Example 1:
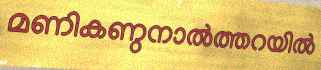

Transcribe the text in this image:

മണികണ്ഠനാൽത്തറയിൽ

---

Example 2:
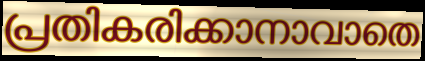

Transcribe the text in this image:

പ്രതികരിക്കാനാവാതെ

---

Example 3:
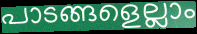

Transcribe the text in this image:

പാടങ്ങളെല്ലാം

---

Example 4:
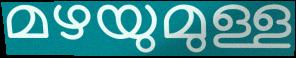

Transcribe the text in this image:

മഴയുമുള്ള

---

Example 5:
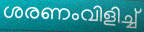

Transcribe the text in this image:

ശരണംവിളിച്ച്